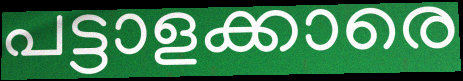
പട്ടാളക്കാരെ